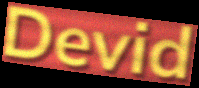
Devid